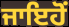
ਜਾਇਹੋਂ